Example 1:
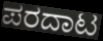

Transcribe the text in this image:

ಪರದಾಟ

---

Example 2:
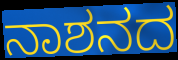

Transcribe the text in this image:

ನಾಶನದ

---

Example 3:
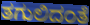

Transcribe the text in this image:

ತಗುಲಿದಂತೆ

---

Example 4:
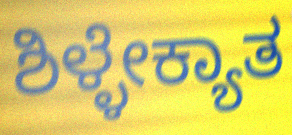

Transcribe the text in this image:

ಶಿಳ್ಳೇಕ್ಯಾತ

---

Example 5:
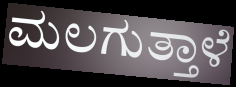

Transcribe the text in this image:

ಮಲಗುತ್ತಾಳೆ